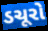
ડચૂરો